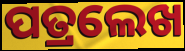
ପତ୍ରଲେଖ